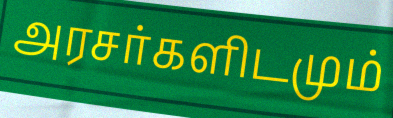
அரசர்களிடமும்